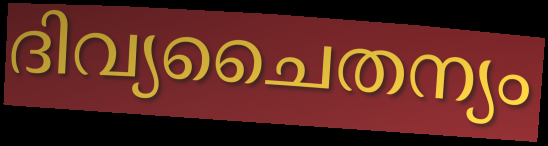
ദിവ്യചൈതന്യം